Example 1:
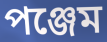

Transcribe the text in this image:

পঞ্জেম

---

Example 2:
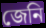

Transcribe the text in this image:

জেনি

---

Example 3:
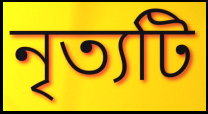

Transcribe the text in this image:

নৃত্যটি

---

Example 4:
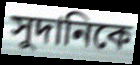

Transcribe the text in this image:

সুদানিকে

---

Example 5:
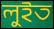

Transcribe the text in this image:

লুইত